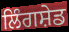
ਲਿੰਗਸ਼ੇਡ